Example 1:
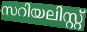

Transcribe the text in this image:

സറിയലിസ്റ്റ്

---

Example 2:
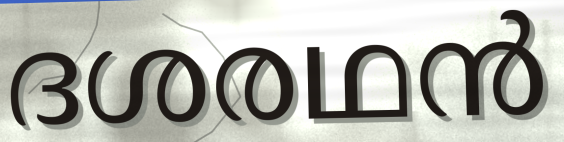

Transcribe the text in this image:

ദശരഥൻ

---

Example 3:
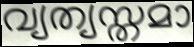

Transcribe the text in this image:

വ്യത്യസ്തമാ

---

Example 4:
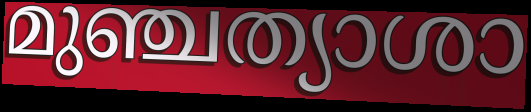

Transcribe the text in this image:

മുഞ്ചത്യാശാ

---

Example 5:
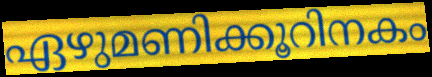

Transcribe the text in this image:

ഏഴുമണിക്കൂറിനകം